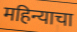
महिन्याचा